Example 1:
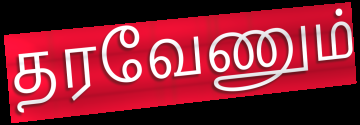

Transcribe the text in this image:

தரவேணும்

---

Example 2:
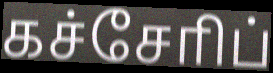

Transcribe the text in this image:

கச்சேரிப்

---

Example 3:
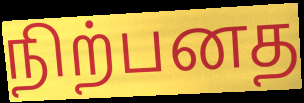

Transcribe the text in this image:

நிற்பனத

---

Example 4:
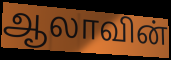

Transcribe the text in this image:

ஆலாவின்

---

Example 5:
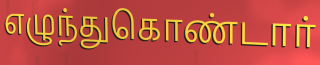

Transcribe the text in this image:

எழுந்துகொண்டார்